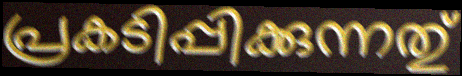
പ്രകടിപ്പിക്കുന്നതു്